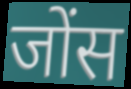
जोंस